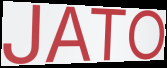
JATO